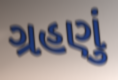
ગ્રહણું